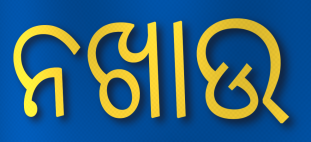
ନଖାଉ